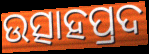
ଉତ୍ସାହପ୍ରଦ